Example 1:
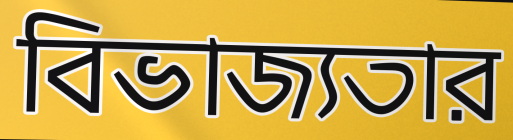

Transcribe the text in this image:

বিভাজ্যতার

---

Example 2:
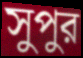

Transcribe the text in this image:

সুপুর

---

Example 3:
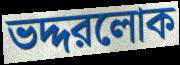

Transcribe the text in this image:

ভদ্দরলোক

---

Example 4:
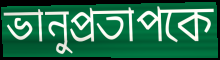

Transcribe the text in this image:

ভানুপ্রতাপকে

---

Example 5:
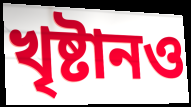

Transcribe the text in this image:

খৃষ্টানও